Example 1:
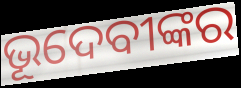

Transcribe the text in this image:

ଭୂଦେବୀଙ୍କର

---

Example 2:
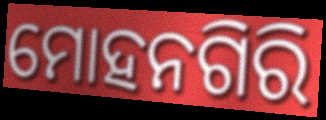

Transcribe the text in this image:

ମୋହନଗିରି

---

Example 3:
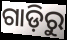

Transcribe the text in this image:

ଗାଡ଼ିରୁ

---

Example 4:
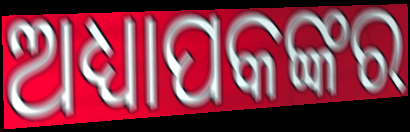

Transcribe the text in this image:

ଅଧ୍ୟାପକଙ୍କର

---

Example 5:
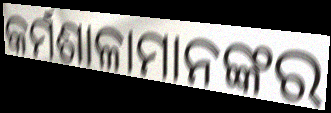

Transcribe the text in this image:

କର୍ମଶାଳାମାନଙ୍କର